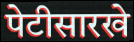
पेटीसारखे